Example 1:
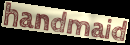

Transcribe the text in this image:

handmaid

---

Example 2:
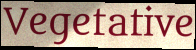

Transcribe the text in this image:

Vegetative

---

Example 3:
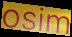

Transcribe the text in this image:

osim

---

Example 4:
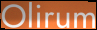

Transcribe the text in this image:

Olirum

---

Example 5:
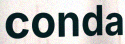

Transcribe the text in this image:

conda